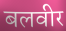
बलवीर